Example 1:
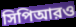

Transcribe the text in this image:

সিপিআরও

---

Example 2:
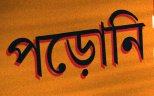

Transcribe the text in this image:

পড়োনি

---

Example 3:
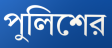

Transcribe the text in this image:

পুলিশের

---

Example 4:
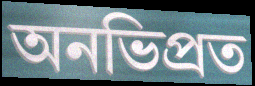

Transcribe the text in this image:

অনভিপ্রত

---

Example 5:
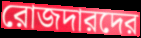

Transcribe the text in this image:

রোজদারদের